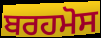
ਬਰਹਮੋਸ